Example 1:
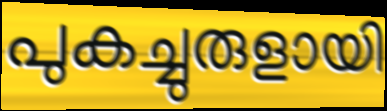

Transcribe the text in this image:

പുകച്ചുരുളായി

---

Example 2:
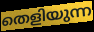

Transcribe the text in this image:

തെളിയുന്ന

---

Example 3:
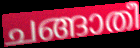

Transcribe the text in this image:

ചങ്ങാതീ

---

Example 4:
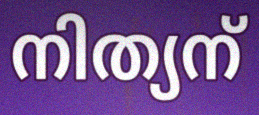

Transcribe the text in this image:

നിത്യന്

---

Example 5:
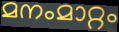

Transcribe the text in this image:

മനംമാറ്റം